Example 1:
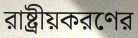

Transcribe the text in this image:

রাষ্ট্রীয়করণের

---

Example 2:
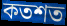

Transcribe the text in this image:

কতশত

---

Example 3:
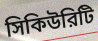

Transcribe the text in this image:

সিকিউরিটি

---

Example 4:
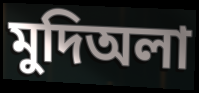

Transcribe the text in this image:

মুদিঅলা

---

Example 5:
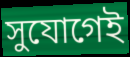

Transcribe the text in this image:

সুযোগেই